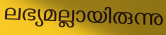
ലഭ്യമല്ലായിരുന്നു